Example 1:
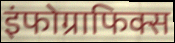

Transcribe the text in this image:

इंफोग्राफिक्स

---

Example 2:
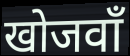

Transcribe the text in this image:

खोजवाँ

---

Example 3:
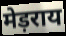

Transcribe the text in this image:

मेड़राय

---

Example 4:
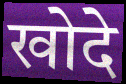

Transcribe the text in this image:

खोदे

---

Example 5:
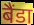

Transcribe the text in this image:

बैंडा